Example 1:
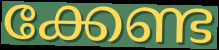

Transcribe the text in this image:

ക്കേണ്ട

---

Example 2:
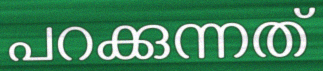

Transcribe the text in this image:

പറക്കുന്നത്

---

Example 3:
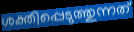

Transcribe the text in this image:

ശക്തിപ്പെടുത്തുന്നത്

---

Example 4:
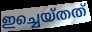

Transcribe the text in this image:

ഇച്ചെയ്തത്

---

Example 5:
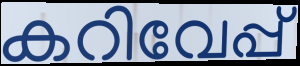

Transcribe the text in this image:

കറിവേപ്പ്